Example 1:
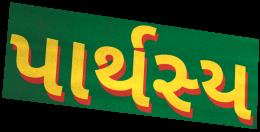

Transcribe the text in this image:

પાર્થસ્ય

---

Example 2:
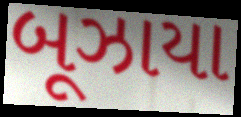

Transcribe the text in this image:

બૂઝાયા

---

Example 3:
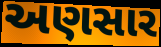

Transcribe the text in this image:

અણસાર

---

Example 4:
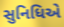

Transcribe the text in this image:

સુનિધિએ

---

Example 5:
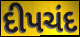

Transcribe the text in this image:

દીપચંદ